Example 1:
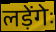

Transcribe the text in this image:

लड़ेंगेः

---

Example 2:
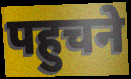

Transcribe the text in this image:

पहुचने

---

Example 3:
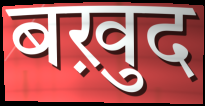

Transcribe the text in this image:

बख़ुद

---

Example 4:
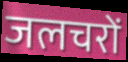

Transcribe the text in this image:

जलचरों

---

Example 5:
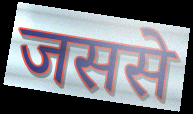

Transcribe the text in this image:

जससे